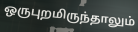
ஒருபுறமிருந்தாலும்